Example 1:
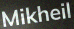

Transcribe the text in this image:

Mikheil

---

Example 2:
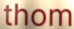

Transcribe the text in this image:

thom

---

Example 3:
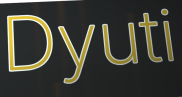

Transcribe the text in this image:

Dyuti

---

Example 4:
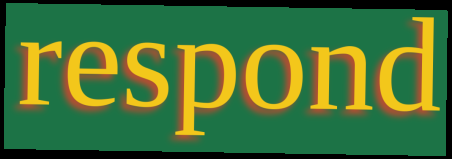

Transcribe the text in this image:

respond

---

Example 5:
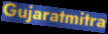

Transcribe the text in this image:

Gujaratmitra